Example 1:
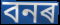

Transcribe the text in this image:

বনৰ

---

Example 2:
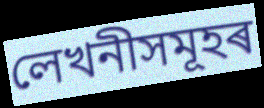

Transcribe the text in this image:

লেখনীসমূহৰ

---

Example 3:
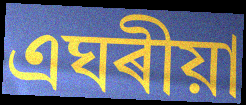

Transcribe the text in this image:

এঘৰীয়া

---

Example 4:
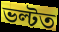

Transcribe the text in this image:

ভল্টত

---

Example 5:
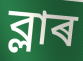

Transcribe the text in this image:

ব্লাৰ